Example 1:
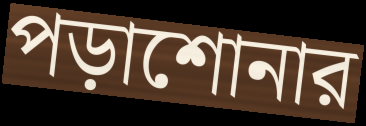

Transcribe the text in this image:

পড়াশোনার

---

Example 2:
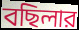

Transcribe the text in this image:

বছিলার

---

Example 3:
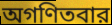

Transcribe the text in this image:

অগণিতবার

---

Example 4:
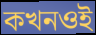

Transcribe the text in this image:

কখনওই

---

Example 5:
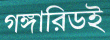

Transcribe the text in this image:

গঙ্গারিডই